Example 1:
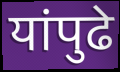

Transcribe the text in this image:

यांपुढे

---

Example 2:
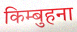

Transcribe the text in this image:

किम्बुहना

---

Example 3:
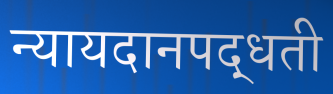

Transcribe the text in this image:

न्यायदानपद्धती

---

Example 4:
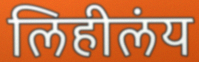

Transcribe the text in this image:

लिहीलंय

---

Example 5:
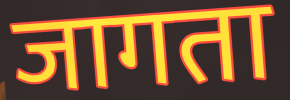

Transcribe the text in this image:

जागता